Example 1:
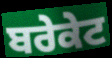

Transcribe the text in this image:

ਬਰੇਕੇਟ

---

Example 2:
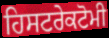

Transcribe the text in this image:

ਹਿਸਟਰੇਕਟੋਮੀ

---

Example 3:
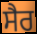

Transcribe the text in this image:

ਸੈਰ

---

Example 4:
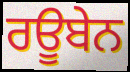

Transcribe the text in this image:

ਰਊਬੇਨ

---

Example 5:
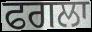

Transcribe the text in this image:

ਫਗਲਾ